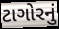
ટાગોરનું